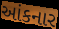
આંકનાર